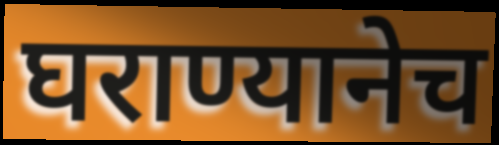
घराण्यानेच